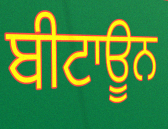
ਬੀਟਾਊਨ